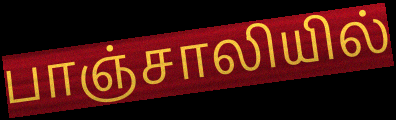
பாஞ்சாலியில்